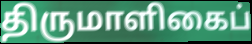
திருமாளிகைப்